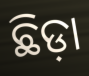
ଛିଡ଼ା